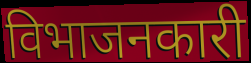
विभाजनकारी